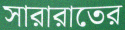
সারারাতের